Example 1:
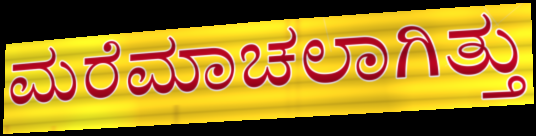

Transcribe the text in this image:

ಮರೆಮಾಚಲಾಗಿತ್ತು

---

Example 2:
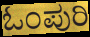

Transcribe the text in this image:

ಓಂಪುರಿ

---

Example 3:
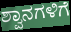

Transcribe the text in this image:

ಶ್ವಾನಗಳಿಗೆ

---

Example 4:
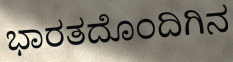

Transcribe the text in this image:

ಭಾರತದೊಂದಿಗಿನ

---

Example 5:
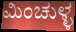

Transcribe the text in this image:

ಮಿಂಚುಳ್ಳ